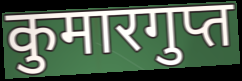
कुमारगुप्त